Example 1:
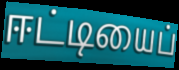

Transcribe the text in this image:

ஈட்டியைப்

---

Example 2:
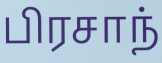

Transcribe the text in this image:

பிரசாந்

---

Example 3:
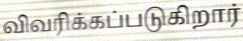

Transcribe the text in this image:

விவரிக்கப்படுகிறார்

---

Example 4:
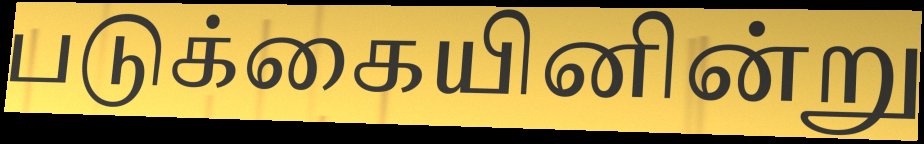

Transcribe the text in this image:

படுக்கையினின்று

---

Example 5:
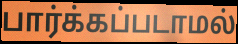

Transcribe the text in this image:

பார்க்கப்படாமல்